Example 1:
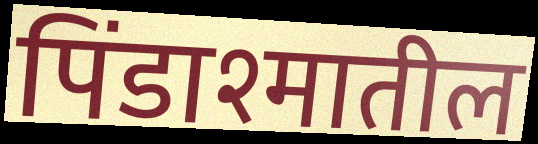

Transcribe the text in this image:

पिंडाश्मातील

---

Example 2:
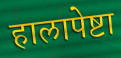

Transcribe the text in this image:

हालापेष्टा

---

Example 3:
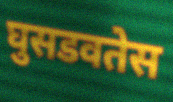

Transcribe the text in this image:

घुसडवतेस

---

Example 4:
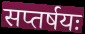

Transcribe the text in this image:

सप्तर्षयः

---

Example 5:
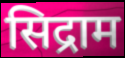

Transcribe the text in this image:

सिद्राम